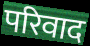
परिवाद